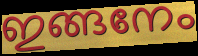
ഇങ്ങനേം